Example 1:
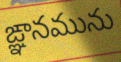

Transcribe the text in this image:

ఙ్ఞానమును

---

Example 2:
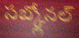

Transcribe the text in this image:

సబ్క్లోనల్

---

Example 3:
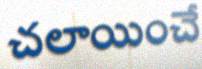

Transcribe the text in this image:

చలాయించే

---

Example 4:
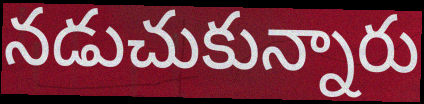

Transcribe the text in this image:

నడుచుకున్నారు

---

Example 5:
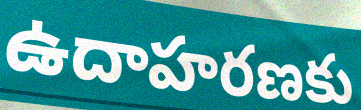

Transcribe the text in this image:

ఉదాహరణకు